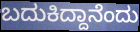
ಬದುಕಿದ್ದಾನೆಂದು